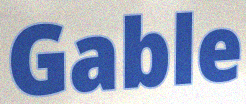
Gable